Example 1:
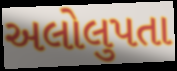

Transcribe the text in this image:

અલોલુપતા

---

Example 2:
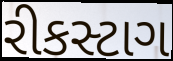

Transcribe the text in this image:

રીકસ્ટાગ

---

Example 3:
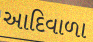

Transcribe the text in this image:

આદિવાળા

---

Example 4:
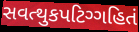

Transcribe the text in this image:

સવત્થુકપટિગ્ગહિતં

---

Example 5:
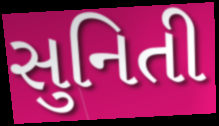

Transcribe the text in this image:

સુનિતી